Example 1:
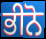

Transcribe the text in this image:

ਭੀਨੋ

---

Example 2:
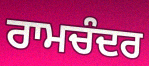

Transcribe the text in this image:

ਰਾਮਚੰਦਰ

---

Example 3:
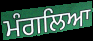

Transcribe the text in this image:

ਮੰਗਲਿਆ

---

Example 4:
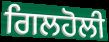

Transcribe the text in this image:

ਗਿਲਹੋਲੀ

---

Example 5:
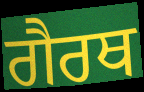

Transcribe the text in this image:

ਗੈਰਥ